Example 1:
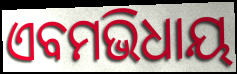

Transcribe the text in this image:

ଏବମଭିଧାୟ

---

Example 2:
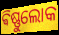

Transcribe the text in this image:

ଵିଷ୍ଣୁଲୋକ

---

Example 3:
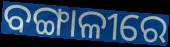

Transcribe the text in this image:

ବଙ୍ଗାଳୀରେ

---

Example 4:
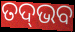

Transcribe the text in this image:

ତଦ୍‌ଭବ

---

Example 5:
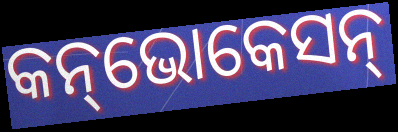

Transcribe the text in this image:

କନ୍‌ଭୋକେସନ୍